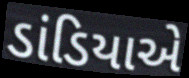
ડાંડિયાએ